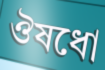
ঔষধো